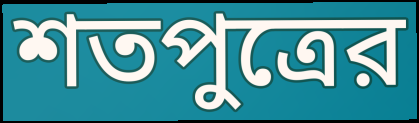
শতপুত্রের